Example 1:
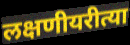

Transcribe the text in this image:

लक्षणीयरीत्या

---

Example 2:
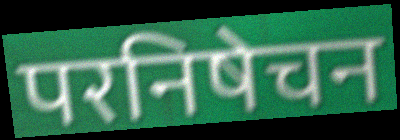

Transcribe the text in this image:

परनिषेचन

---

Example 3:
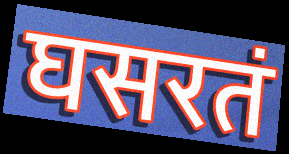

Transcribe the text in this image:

घसरतं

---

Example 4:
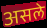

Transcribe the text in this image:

असले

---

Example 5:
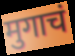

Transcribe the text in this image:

मुगाचं